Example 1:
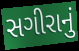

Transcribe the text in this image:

સગીરાનું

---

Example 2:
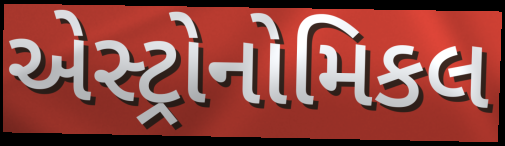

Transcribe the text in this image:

એસ્ટ્રોનોમિકલ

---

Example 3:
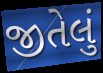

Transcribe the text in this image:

જીતેલું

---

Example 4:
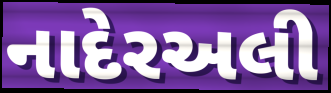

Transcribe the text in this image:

નાદેરઅલી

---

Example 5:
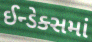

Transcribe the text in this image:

ઈન્ડેક્સમાં